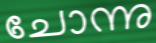
ചോന്നു